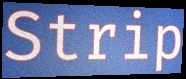
Strip